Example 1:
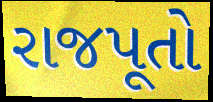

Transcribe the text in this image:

રાજપૂતો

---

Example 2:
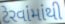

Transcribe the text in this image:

ટેરવાંમાંથી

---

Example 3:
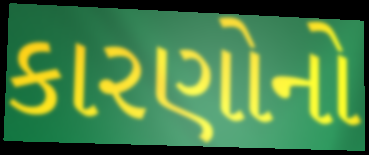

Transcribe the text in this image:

કારણોનો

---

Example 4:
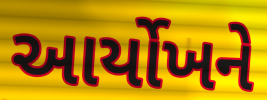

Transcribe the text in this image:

આર્યોખને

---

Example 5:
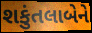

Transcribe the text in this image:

શકુંતલાબેને